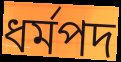
ধর্মপদ